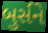
બુર્સને